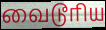
வைடூரிய